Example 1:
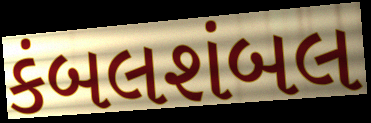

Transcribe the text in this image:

કંબલશંબલ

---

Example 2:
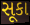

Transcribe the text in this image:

સૂકા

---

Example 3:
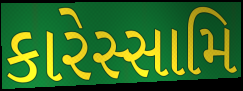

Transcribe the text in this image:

કારેસ્સામિ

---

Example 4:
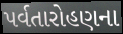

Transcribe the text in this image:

પર્વતારોહણના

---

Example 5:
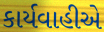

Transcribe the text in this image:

કાર્યવાહીએ